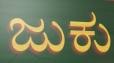
ಜುಕು